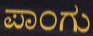
ಪಾಂಗು